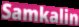
Samkalin